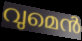
വുമെൻ